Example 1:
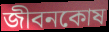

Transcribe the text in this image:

জীবনকোষ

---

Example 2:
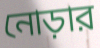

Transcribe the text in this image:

নোড়ার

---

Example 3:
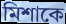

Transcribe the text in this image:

মিশাকে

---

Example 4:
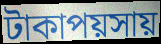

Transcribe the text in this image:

টাকাপয়সায়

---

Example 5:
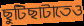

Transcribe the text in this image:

ছুটিছাটাতেও